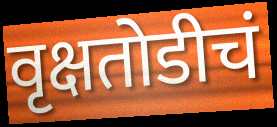
वृक्षतोडीचं